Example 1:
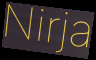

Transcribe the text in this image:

Nirja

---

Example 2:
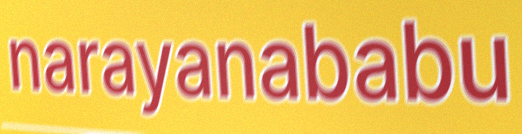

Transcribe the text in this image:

narayanababu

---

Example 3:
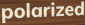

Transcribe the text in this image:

polarized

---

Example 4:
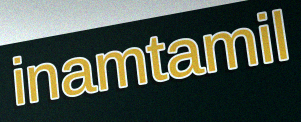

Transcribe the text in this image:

inamtamil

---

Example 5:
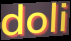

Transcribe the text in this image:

doli